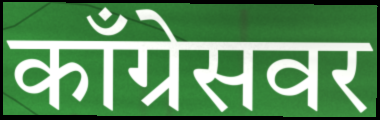
काँग्रेसवर